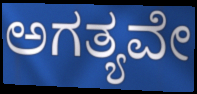
ಅಗತ್ಯವೇ